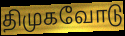
திமுகவோடு